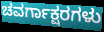
ಚವರ್ಗಾಕ್ಷರಗಳು